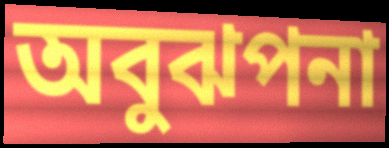
অবুঝপনা